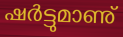
ഷർട്ടുമാണു്